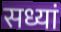
सध्यां